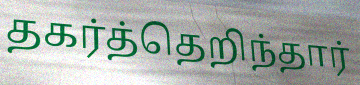
தகர்த்தெறிந்தார்